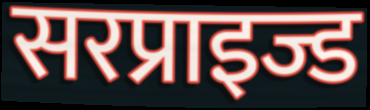
सरप्राइज्ड